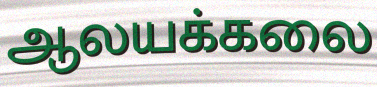
ஆலயக்கலை